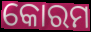
କୋରମ